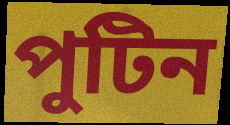
পুটিন